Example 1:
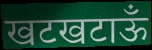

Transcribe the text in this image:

खटखटाऊँ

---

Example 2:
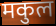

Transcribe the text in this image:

मकुल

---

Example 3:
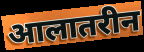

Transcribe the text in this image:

आलातरीन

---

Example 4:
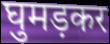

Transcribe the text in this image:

घुमड़कर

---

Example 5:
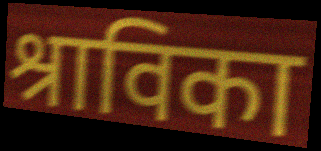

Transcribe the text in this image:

श्राविका